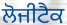
ਲੋਜੀਟੈਕ